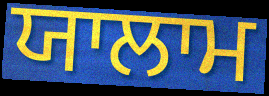
ਯਾਲਾਮ